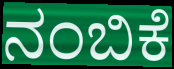
ನಂಬಿಕೆ